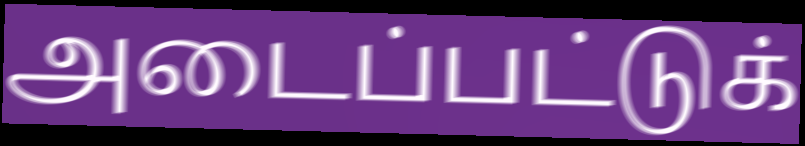
அடைப்பட்டுக்